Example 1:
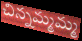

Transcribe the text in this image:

చిన్నమ్మమ్మ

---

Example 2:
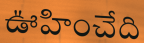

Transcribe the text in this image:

ఊహించేది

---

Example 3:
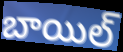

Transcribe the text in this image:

బాయిల్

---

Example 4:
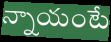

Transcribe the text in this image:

న్నాయంటే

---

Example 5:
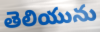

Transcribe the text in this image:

తెలియును